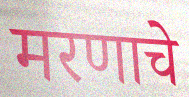
मरणाचे